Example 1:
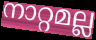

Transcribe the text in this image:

നാറ്റമല്ല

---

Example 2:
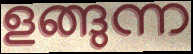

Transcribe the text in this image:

ളങ്ങുന്ന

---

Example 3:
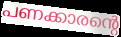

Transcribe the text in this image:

പണക്കാരന്റെ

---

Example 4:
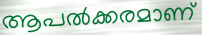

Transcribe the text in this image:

ആപൽക്കരമാണ്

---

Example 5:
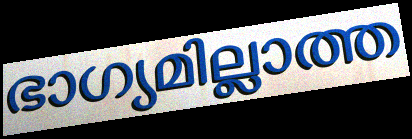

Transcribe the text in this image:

ഭാഗ്യമില്ലാത്ത